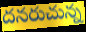
దనరుచున్న